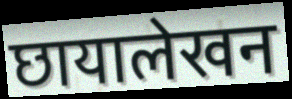
छायालेखन